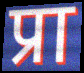
प्रा